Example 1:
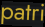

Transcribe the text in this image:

patri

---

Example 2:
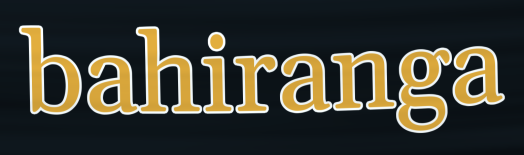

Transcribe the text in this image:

bahiranga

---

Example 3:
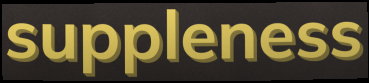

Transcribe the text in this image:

suppleness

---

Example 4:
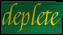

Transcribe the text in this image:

deplete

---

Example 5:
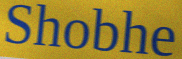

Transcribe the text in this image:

Shobhe